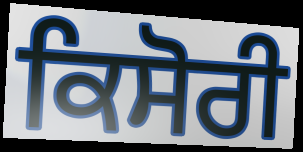
ਕਿਸੋਰੀ